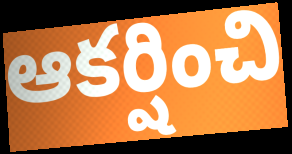
ఆకర్షించి